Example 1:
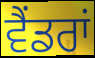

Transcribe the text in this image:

ਵੈਂਡਰਾਂ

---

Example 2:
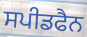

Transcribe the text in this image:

ਸਪੀਡਫੈਨ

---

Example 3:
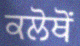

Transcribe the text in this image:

ਕਲੋਥੋਂ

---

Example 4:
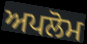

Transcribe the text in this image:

ਅਪਲੋਮ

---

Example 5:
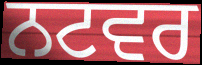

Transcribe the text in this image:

ਨਟਵਰ